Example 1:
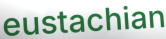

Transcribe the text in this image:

eustachian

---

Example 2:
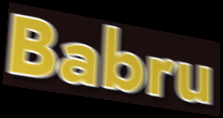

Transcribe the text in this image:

Babru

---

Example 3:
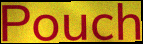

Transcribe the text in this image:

Pouch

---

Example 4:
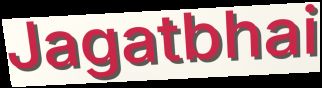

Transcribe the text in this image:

Jagatbhai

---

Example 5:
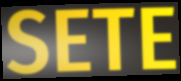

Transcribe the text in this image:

SETE